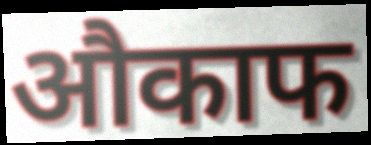
औकाफ